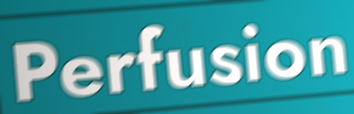
Perfusion